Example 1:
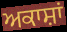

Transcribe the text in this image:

ਅਕਾਸ਼ਾਂ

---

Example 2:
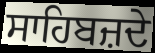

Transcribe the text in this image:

ਸਾਹਿਬਜ਼ਦੇ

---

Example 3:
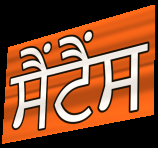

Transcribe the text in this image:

ਸੈਂਟੈਂਸ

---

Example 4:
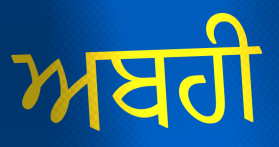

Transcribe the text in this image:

ਅਬਹੀ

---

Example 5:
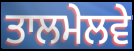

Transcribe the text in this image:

ਤਾਲਮੇਲਵੇ